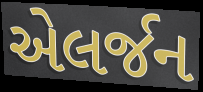
એલર્જન